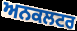
ਅਨਕਲਟਰ